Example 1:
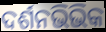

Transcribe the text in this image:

ଦର୍ଶନଭିଭିକ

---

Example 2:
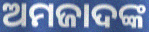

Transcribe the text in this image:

ଅମଜାଦଙ୍କ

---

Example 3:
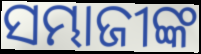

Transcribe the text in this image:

ସମ୍ଭାଜୀଙ୍କ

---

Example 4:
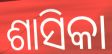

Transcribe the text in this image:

ଶାସିକା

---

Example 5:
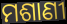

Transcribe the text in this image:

ମଶାଣୀ